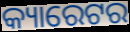
କ୍ୟାରେଟର